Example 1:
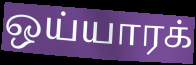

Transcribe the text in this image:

ஒய்யாரக்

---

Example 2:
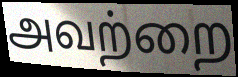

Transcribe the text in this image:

அவற்றை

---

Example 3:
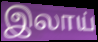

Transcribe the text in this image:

இலாய்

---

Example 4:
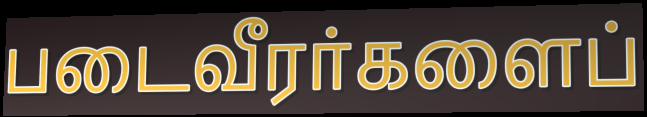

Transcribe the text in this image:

படைவீரர்களைப்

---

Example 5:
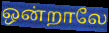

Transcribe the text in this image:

ஒன்றாலே